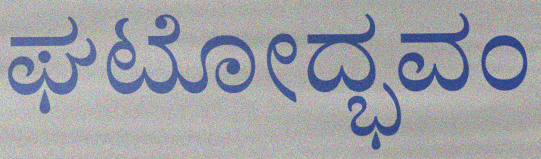
ಘಟೋದ್ಭವಂ